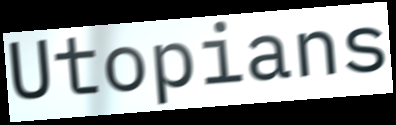
Utopians